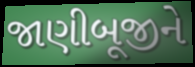
જાણીબૂજીને